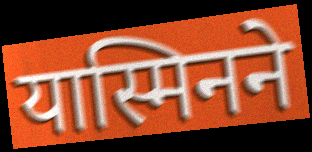
यास्मिनने